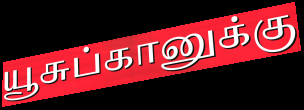
யூசுப்கானுக்கு